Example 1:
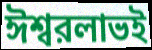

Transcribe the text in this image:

ঈশ্বরলাভই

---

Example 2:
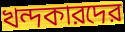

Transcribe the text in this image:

খন্দকারদের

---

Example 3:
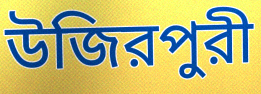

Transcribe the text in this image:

উজিরপুরী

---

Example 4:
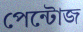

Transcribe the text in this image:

পেন্টোজ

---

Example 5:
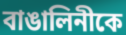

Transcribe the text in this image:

বাঙালিনীকে